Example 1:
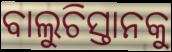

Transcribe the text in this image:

ବାଲୁଚିସ୍ତାନକୁ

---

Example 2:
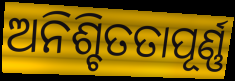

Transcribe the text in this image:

ଅନିଶ୍ଚିତତାପୂର୍ଣ୍ଣ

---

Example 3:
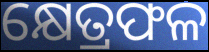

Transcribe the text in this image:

କ୍ଷେତ୍ରଫଳ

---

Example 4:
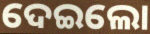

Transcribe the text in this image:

ଦେଇଲୋ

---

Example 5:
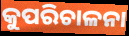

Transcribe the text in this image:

କୁପରିଚାଳନା